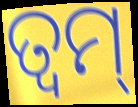
ତ୍ୱମ୍